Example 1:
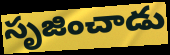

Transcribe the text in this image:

సృజించాడు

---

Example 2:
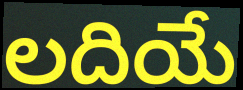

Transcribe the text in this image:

లదియే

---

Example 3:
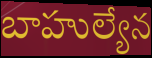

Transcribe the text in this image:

బాహుల్యేన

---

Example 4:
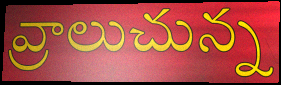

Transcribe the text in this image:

వ్రాలుచున్న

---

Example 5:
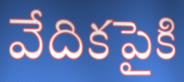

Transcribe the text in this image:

వేదికపైకి